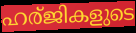
ഹര്ജികളുടെ